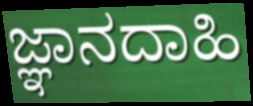
ಜ್ಞಾನದಾಹಿ